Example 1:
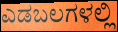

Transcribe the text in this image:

ಎಡಬಲಗಳಲ್ಲಿ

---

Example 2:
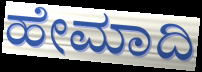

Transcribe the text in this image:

ಹೇಮಾದಿ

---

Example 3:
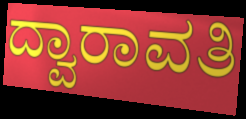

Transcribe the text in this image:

ದ್ವಾರಾವತಿ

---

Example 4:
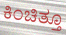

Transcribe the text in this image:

ಕಿಂಚಿತ್ತೂ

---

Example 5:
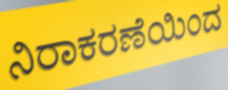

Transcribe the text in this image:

ನಿರಾಕರಣೆಯಿಂದ